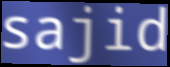
sajid